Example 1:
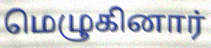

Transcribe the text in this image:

மெழுகினார்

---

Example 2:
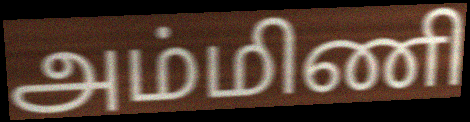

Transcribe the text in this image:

அம்மிணி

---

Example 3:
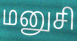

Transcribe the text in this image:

மனுசி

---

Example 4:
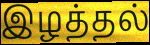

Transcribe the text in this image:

இழத்தல்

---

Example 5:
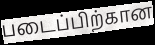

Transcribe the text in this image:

படைப்பிற்கான